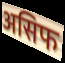
असिफ